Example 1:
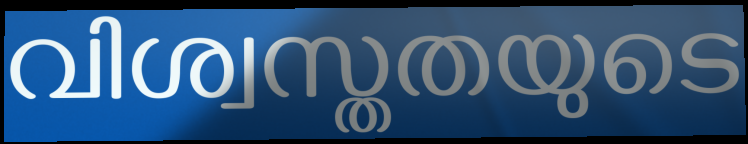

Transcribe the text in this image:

വിശ്വസ്തതയുടെ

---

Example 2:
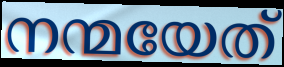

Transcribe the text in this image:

നന്മയേത്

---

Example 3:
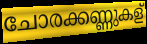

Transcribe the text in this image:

ചോരക്കണ്ണുകള്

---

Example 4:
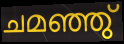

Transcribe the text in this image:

ചമഞ്ഞു്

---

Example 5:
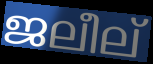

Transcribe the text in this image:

ജലീല്